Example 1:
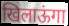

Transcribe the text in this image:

खिलाऊंगा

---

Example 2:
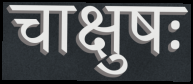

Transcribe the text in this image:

चाक्षुषः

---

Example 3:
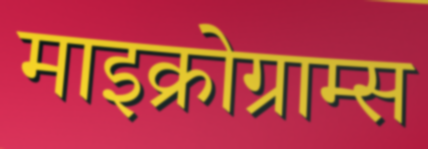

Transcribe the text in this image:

माइक्रोग्राम्स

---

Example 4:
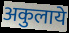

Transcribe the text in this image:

अकुलाये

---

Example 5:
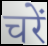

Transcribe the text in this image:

चरें